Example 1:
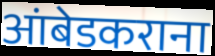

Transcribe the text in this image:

आंबेडकराना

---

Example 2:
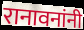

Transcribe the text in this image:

रानावनांनी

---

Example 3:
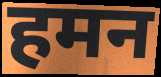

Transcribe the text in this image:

हमन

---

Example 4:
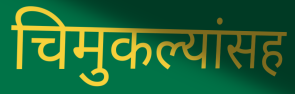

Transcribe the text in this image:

चिमुकल्यांसह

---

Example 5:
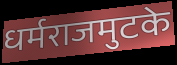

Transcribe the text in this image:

धर्मराजमुटके